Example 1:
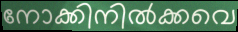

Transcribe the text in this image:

നോക്കിനിൽക്കവെ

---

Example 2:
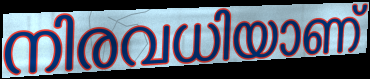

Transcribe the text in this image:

നിരവധിയാണ്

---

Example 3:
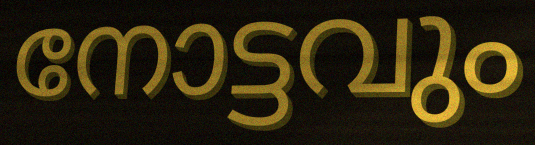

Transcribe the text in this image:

നോട്ടവും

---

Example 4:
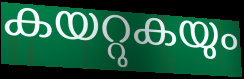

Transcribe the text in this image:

കയറ്റുകയും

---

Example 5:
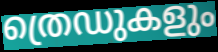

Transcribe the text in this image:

ത്രെഡുകളും